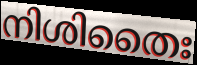
നിശിതൈഃ